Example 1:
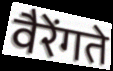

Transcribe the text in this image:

वैरेंगते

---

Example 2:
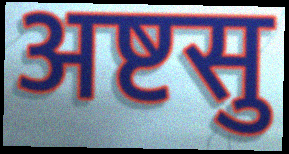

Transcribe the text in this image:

अष्टसु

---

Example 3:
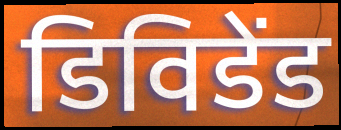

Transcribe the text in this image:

डिविडेंड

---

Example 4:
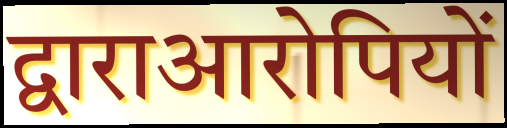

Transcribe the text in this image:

द्वाराआरोपियों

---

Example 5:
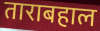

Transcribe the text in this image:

ताराबहाल